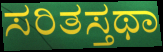
ಸರಿತಸ್ತಥಾ